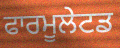
ਫਾਰਮੂਲੇਟਡ